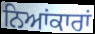
ਨਿਆਂਕਾਰਾਂ